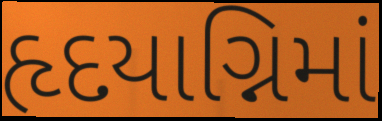
હૃદયાગ્નિમાં